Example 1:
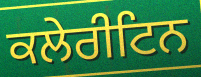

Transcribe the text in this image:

ਕਲੇਰੀਟਿਨ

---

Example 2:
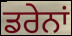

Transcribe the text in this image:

ਡਰੇਨਾਂ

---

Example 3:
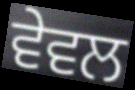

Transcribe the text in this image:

ਵੇਵਲ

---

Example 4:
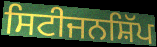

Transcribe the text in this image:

ਸਿਟੀਜਨਸ਼ਿੱਪ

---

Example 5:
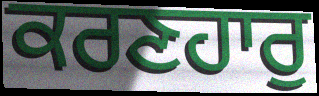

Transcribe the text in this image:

ਕਰਣਹਾਰੁ